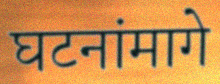
घटनांमागे